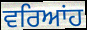
ਵਰਿਆਂਹ